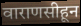
वाराणसीहून